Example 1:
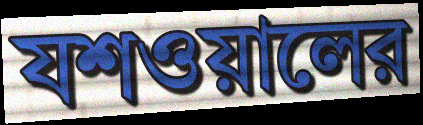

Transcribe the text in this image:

যশওয়ালের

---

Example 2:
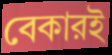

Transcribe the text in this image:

বেকারই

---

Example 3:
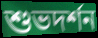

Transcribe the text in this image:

শুভদর্শন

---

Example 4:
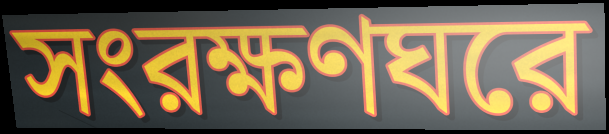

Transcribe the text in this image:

সংরক্ষণঘরে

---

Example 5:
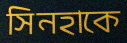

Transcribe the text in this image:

সিনহাকে